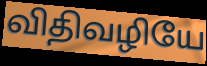
விதிவழியே